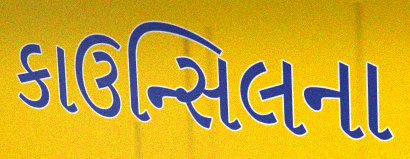
કાઉન્સિલના